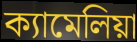
ক্যামেলিয়া